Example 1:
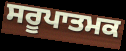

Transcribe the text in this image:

ਸਰੂਪਾਤਮਕ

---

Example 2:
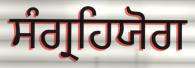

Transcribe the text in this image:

ਸੰਗ੍ਰਹਿਯੋਗ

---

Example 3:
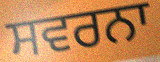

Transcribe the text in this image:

ਸਵਰਨਾ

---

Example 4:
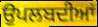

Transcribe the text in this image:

ਉਪਲਬਦੀਆਂ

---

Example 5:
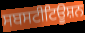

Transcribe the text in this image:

ਸਬਸਟੀਟਿਊਸ਼ਨ